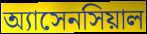
অ্যাসেনসিয়াল